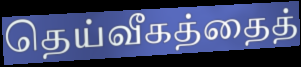
தெய்வீகத்தைத்